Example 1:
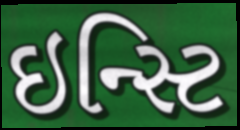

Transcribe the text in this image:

ઇન્સ્ટિ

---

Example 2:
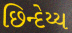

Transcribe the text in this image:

છિન્દેય્ય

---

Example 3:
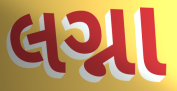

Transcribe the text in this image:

લગ્ના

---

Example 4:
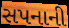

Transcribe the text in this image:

સપનાની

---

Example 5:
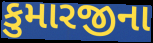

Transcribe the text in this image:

કુમારજીના